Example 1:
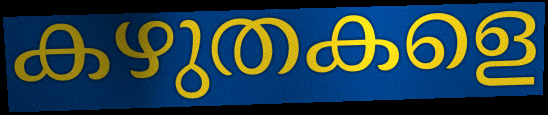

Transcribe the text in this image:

കഴുതകളെ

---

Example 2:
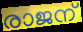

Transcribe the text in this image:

രാജന്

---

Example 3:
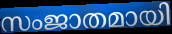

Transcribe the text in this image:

സംജാതമായി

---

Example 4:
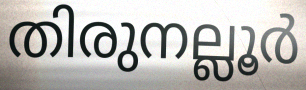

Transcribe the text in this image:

തിരുനല്ലൂർ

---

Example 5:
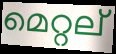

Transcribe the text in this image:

മെറ്റല്